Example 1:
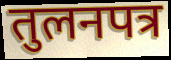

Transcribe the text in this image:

तुलनपत्र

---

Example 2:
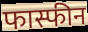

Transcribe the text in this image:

फास्फीन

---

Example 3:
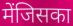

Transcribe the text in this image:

मेंजिसका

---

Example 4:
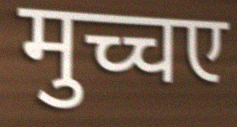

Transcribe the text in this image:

मुच्चए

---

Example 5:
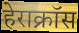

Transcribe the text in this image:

हेराक्रॉस